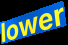
lower